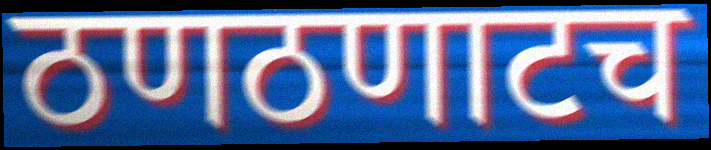
ठणठणाटच